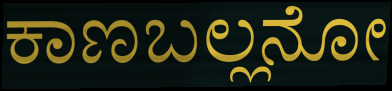
ಕಾಣಬಲ್ಲನೋ